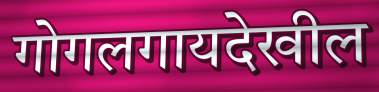
गोगलगायदेखील